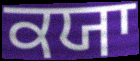
ਕਯਾ